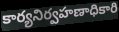
కార్యనిర్వహణాధికారి